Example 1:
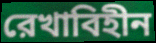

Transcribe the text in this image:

রেখাবিহীন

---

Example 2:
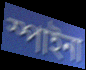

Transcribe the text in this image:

স্পাইনা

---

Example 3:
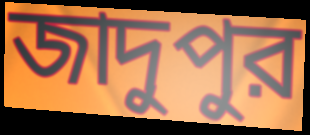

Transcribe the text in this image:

জাদুপুর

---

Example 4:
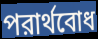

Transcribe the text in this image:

পরার্থবোধ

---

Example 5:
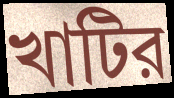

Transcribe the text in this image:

খাটির